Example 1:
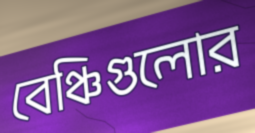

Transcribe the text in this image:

বেঞ্চিগুলোর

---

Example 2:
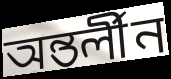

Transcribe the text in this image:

অন্তর্লীন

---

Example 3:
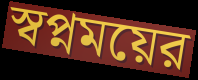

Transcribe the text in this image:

স্বপ্নময়ের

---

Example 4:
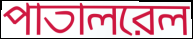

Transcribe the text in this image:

পাতালরেল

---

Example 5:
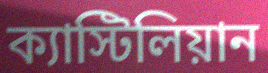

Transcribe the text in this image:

ক্যাস্টিলিয়ান